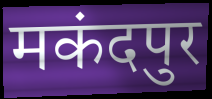
मकंदपुर